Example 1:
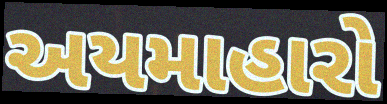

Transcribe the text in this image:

અયમાહારો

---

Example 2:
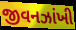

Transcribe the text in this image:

જીવનઝાંખી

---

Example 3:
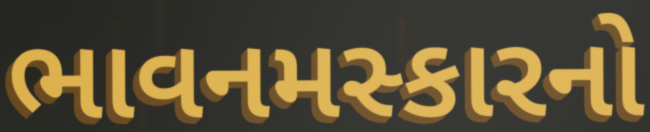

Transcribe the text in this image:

ભાવનમસ્કારનો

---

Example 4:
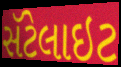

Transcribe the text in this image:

સૅટેલાઇટ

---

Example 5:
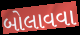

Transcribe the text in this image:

બોલાવવા